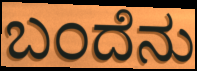
ಬಂದೆನು